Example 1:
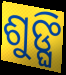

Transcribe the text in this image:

ଶୁଙ୍ଘି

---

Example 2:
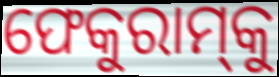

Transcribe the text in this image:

ଫେକୁରାମ୍‌କୁ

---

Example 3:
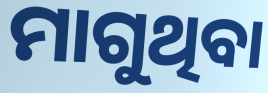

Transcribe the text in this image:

ମାଗୁଥିବା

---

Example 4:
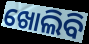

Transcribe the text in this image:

ଖୋଲିବି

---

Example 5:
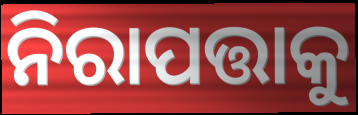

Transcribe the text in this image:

ନିରାପତ୍ତାକୁ